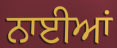
ਨਾਈਆਂ